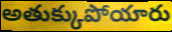
అతుక్కుపోయారు